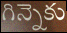
గిన్నెకు